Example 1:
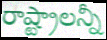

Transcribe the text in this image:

రాష్ట్రాలన్నీ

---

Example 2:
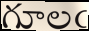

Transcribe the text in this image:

గూలఁ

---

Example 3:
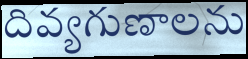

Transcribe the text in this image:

దివ్యగుణాలను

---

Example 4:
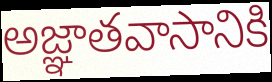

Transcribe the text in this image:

అజ్ఞాతవాసానికి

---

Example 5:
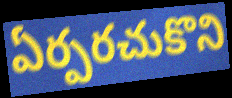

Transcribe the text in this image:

ఏర్పరచుకొని